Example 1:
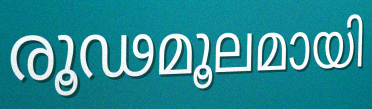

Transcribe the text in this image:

രൂഢമൂലമായി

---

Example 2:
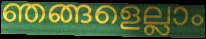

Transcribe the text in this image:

ഞങ്ങളെല്ലാം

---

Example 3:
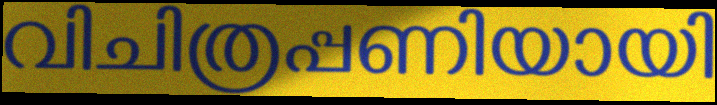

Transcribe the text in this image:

വിചിത്രപ്പണിയായി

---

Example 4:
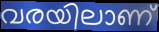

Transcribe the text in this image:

വരയിലാണ്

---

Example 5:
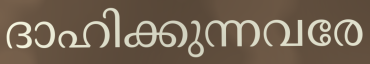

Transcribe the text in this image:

ദാഹിക്കുന്നവരേ